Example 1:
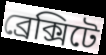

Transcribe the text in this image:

ব্রেক্সিটে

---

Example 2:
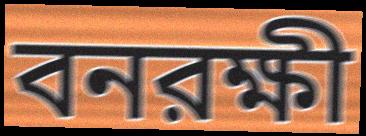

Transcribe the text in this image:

বনরক্ষী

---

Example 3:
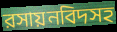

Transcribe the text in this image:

রসায়নবিদসহ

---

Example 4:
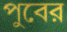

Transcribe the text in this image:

পুবের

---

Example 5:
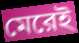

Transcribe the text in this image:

মেরেই